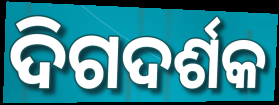
ଦିଗଦର୍ଶକ